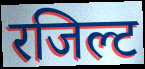
रजिल्ट